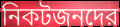
নিকটজনদের